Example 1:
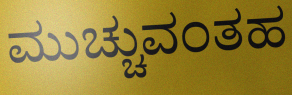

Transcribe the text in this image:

ಮುಚ್ಚುವಂತಹ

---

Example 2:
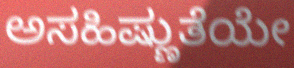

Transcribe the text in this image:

ಅಸಹಿಷ್ಣುತೆಯೇ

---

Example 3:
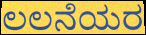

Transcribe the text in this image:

ಲಲನೆಯರ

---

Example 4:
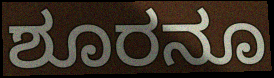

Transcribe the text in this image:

ಶೂರನೂ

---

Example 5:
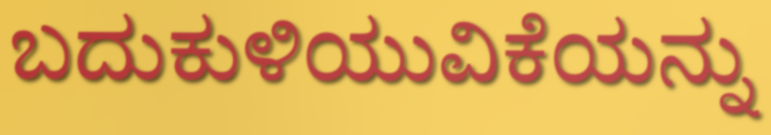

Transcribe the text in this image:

ಬದುಕುಳಿಯುವಿಕೆಯನ್ನು